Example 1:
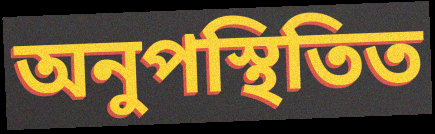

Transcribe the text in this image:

অনুপস্থিতিত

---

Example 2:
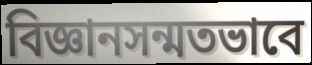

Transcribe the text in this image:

বিজ্ঞানসন্মতভাবে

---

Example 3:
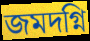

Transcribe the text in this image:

জমদগ্নি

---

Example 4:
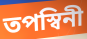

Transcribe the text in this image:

তপস্বিনী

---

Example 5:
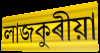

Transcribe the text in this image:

লাজকুৰীয়া